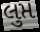
લુપ્ત